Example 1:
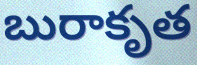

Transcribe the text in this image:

బురాకృత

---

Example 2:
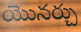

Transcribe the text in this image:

యొనర్చు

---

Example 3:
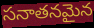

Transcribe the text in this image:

సనాతనమైన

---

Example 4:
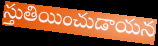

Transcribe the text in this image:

స్తుతియించుడాయన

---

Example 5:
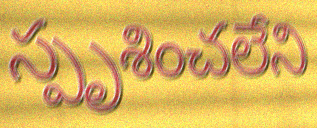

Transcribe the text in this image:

స్పృశించలేని